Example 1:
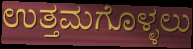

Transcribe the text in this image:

ಉತ್ತಮಗೊಳ್ಳಲು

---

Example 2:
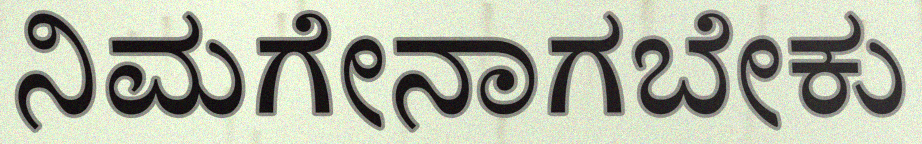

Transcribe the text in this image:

ನಿಮಗೇನಾಗಬೇಕು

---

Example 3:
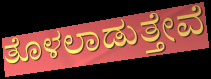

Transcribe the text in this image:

ತೊಳಲಾಡುತ್ತೇವೆ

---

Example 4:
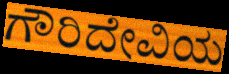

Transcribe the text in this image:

ಗೌರಿದೇವಿಯ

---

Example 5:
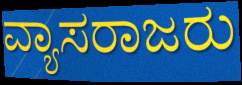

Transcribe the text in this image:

ವ್ಯಾಸರಾಜರು